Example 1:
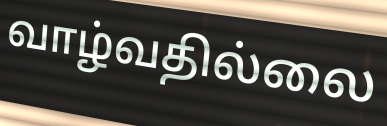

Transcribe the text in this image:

வாழ்வதில்லை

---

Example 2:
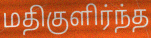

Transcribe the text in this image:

மதிகுளிர்ந்த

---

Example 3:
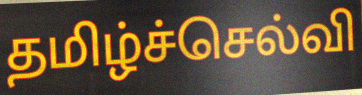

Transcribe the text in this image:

தமிழ்ச்செல்வி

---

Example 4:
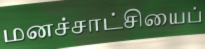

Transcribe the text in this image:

மனச்சாட்சியைப்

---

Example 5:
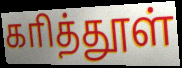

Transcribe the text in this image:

கரித்தூள்